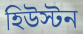
হিউস্টন